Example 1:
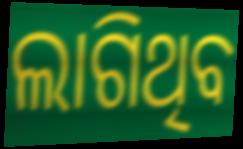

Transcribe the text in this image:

ଲାଗିଥିବ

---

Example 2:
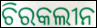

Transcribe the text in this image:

ଚିରକଲୀନ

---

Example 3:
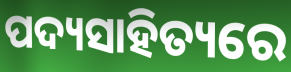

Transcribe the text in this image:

ପଦ୍ୟସାହିତ୍ୟରେ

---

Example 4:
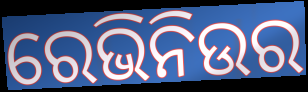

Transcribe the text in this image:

ରେଭିନିଉର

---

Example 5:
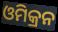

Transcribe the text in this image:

ଓମିକ୍ରନ